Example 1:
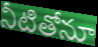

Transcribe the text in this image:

నీటితోనూ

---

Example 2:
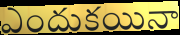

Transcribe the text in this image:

ఎందుకయినా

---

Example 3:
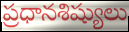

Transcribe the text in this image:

ప్రధానశిష్యులు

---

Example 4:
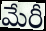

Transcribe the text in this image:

మేరీ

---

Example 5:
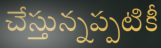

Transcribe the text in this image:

చేస్తున్నప్పటికీ